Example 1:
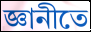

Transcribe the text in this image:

জ্ঞানীতে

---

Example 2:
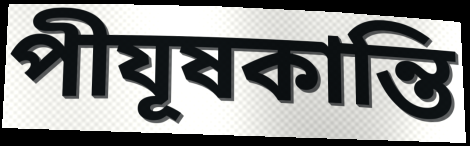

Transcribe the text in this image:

পীযূষকান্তি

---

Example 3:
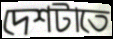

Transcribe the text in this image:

দেশটাতে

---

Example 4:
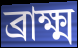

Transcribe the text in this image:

ব্রাক্ষ্ম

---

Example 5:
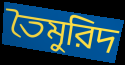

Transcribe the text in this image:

তৈমুরিদ